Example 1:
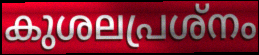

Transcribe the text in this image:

കുശലപ്രശ്നം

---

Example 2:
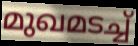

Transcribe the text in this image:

മുഖമടച്ച്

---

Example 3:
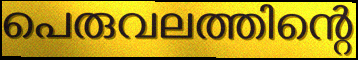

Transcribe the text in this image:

പെരുവലത്തിന്റെ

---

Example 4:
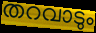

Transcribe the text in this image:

തറവാടും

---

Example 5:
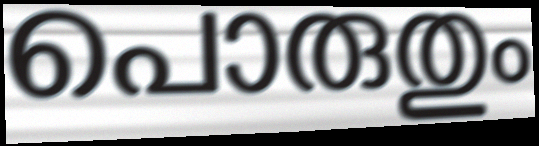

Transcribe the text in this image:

പൊരുതും